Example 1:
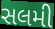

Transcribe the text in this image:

સલમી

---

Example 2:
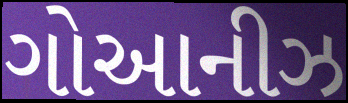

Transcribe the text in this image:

ગોઆનીઝ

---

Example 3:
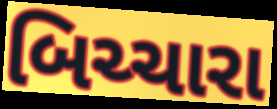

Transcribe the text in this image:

બિચ્ચારા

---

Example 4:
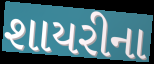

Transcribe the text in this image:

શાયરીના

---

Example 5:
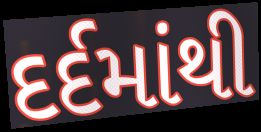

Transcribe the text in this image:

દર્દમાંથી